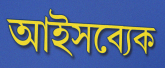
আইসব্যেক